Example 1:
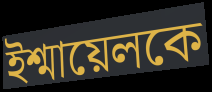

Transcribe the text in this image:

ইশ্মায়েলকে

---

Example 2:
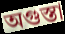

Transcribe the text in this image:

অগুস্তা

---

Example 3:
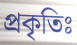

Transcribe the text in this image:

প্রকৃতিঃ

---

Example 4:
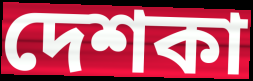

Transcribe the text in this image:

দেশকা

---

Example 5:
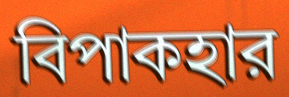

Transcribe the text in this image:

বিপাকহার